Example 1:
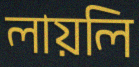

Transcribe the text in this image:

লায়লি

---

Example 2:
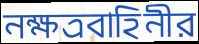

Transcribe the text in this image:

নক্ষত্রবাহিনীর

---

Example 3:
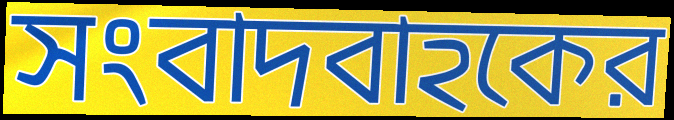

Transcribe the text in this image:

সংবাদবাহকের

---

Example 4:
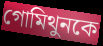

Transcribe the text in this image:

গোমিথুনকে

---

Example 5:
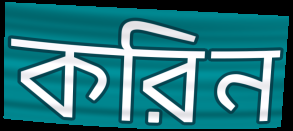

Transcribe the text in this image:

করিন